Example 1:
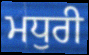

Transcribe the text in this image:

ਮਧੁਰੀ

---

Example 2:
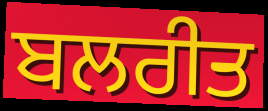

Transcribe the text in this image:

ਬਲਰੀਤ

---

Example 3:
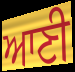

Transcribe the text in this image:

ਆਣੀ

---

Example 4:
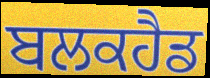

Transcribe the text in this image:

ਬਲਕਹੈਡ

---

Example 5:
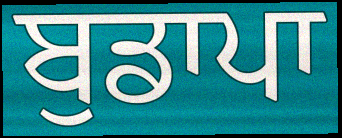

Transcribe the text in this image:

ਬੁਡਾਪਾ